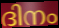
ദിനം